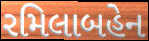
રમિલાબહેન